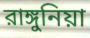
রাঙ্গুনিয়া